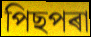
পিছপৰা